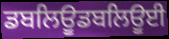
ਡਬਲਿਊਡਬਲਿਊਈ